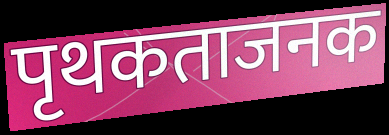
पृथकताजनक